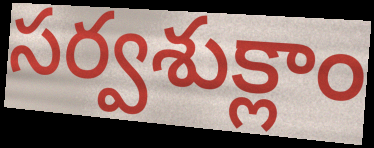
సర్వశుక్లాం